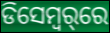
ଡିସେମ୍ବର୍‌ରେ